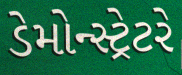
ડેમોન્સ્ટ્રેટરે